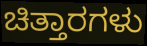
ಚಿತ್ತಾರಗಳು